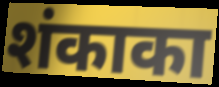
शंकाका